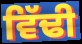
ਵਿੱਢੀ